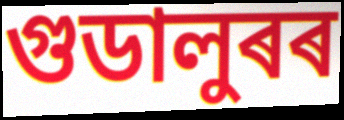
গুডালুৰৰ